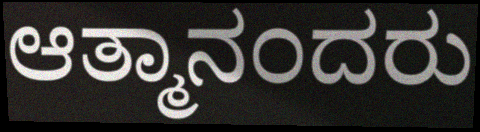
ಆತ್ಮಾನಂದರು